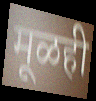
मूळही